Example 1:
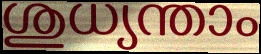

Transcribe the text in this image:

ശുധ്യന്താം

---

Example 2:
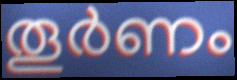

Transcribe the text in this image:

തൂർണം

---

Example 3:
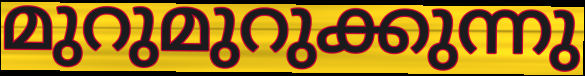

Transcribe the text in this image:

മുറുമുറുക്കുന്നു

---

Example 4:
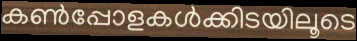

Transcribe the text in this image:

കൺപ്പോളകൾക്കിടയിലൂടെ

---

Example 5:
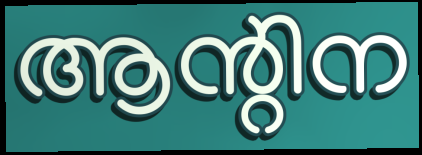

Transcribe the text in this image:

ആന്റിന